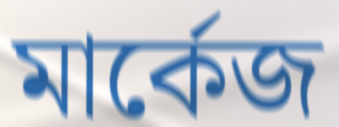
মার্কেজ